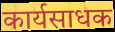
कार्यसाधक